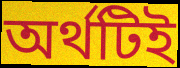
অর্থটিই